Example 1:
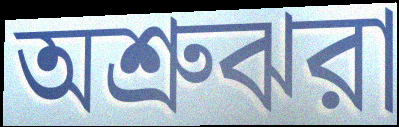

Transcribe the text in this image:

অশ্রুঝরা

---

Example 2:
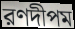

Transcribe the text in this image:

রণদীপম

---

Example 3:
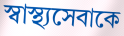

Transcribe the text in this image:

স্বাস্থ্যসেবাকে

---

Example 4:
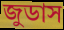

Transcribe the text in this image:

জুডাস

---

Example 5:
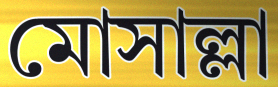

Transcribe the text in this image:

মোসাল্লা